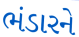
ભંડારને